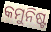
କମୁନିଷ୍ଟ